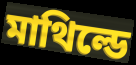
মাথিল্ডে